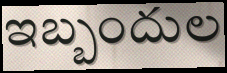
ఇబ్బందుల